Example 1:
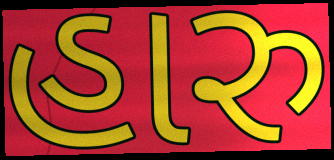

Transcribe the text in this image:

હારુ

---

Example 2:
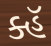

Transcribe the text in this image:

ક્હૅ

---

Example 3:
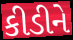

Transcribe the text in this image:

કીડીને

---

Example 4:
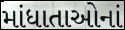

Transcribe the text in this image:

માંધાતાઓનાં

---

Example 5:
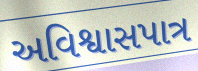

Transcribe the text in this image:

અવિશ્વાસપાત્ર